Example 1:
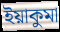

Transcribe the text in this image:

ইয়াকুমা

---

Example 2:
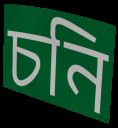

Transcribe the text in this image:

চনি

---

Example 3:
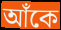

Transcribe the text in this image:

আঁকে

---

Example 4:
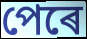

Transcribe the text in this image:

পেৰে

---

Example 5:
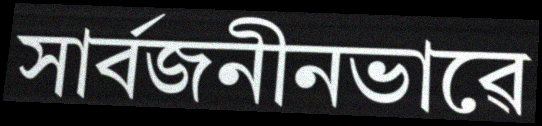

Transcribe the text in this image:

সাৰ্বজনীনভাৱে